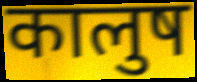
कालुष